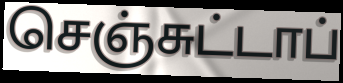
செஞ்சுட்டாப்